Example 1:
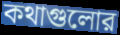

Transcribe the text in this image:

কথাগুলোর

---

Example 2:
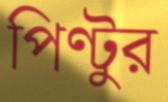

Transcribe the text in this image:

পিণ্টুর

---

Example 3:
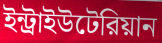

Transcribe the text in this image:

ইন্ট্রাইউটেরিয়ান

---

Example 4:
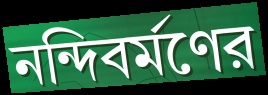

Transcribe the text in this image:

নন্দিবর্মণের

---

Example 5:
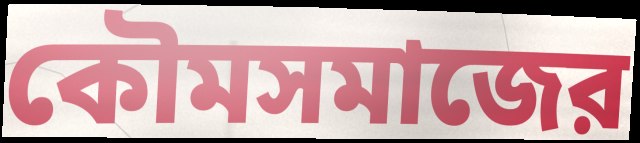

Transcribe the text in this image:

কৌমসমাজের